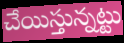
చేయిస్తున్నట్టు